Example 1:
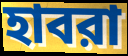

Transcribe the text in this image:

হাবরা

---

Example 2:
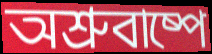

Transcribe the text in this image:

অশ্রুবাষ্পে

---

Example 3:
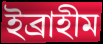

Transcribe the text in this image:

ইব্রাহীম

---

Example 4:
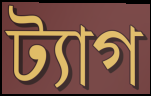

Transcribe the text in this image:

ট্যাগ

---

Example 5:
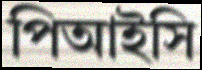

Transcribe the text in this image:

পিআইসি